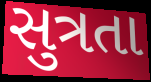
સુત્રતા